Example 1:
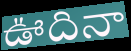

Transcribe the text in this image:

ఊదినా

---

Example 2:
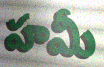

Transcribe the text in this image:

హమీ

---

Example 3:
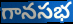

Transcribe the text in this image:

గానసభ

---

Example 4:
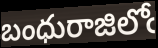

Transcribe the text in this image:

బంధురాజిలోఁ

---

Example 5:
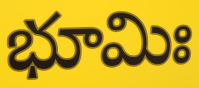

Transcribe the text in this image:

భూమిః